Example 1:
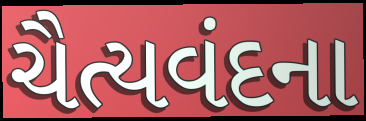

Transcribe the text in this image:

ચૈત્યવંદના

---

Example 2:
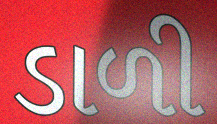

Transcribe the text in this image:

ડાળી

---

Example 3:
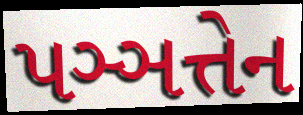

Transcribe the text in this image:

પઞ્ઞત્તેન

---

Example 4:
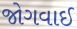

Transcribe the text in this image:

જોગવાઈ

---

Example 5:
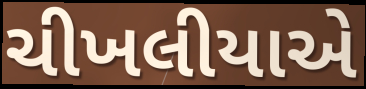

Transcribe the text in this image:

ચીખલીયાએ